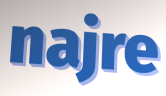
najre